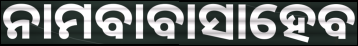
ନାମବାବାସାହେବ